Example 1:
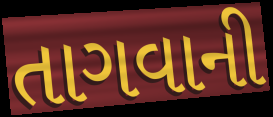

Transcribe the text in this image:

તાગવાની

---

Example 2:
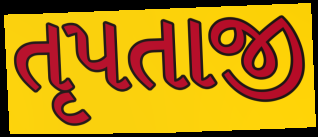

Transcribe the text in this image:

તૃપતાજી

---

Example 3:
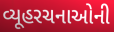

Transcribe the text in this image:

વ્યૂહરચનાઓની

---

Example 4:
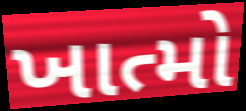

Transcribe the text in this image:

ખાત્મો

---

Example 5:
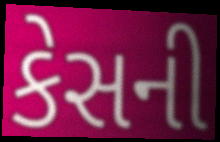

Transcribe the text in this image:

કેસની